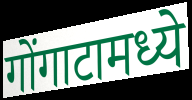
गोंगाटामध्ये